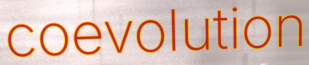
coevolution